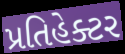
પ્રતિહેક્ટર